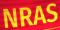
NRAS